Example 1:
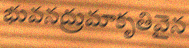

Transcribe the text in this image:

భువనద్రుమాకృతివైన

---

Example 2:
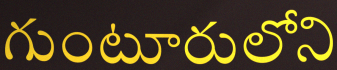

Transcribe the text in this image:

గుంటూరులోని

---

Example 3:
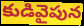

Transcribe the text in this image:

కుడివైపున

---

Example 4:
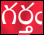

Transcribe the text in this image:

గర్తఁ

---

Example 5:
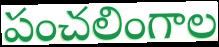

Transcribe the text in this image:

పంచలింగాల